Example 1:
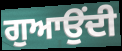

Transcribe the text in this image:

ਗੁਆਉਂਦੀ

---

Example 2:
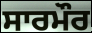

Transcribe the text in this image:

ਸਾਰਮੌਰ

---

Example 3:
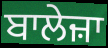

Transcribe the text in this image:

ਬਾਲੇਜ਼ਾ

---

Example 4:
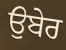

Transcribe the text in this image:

ਉਬੇਰ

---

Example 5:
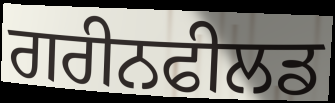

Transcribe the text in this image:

ਗਰੀਨਫੀਲਡ